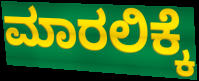
ಮಾರಲಿಕ್ಕೆ